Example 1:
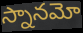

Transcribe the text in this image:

స్నానమో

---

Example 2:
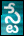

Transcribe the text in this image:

స్టే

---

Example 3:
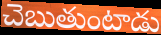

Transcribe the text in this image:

చెబుతుంటాడు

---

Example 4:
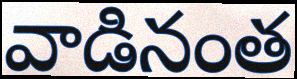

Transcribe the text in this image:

వాడినంత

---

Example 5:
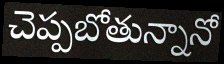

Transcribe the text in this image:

చెప్పబోతున్నానో